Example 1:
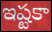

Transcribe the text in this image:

ఇష్టకా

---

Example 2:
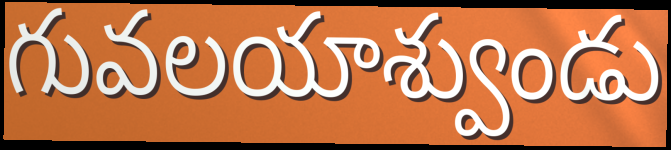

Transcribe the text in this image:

గువలయాశ్వుండు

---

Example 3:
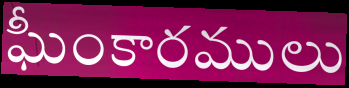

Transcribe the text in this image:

ఘీంకారములు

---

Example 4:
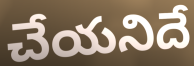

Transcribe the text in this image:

చేయనిదే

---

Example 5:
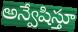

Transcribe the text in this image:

అన్వేషిస్తూ